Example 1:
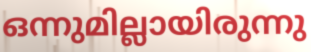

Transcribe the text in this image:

ഒന്നുമില്ലായിരുന്നു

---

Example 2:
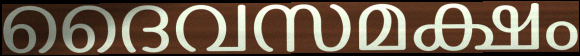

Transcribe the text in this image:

ദൈവസമക്ഷം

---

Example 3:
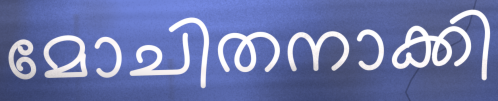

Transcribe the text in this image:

മോചിതനാക്കി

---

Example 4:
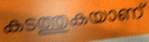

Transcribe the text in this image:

കടത്തുകയാണ്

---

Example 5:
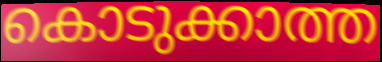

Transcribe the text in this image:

കൊടുക്കാത്ത